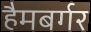
हैमबर्गर